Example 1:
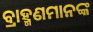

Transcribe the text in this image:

ବ୍ରାହ୍ମଣମାନଙ୍କ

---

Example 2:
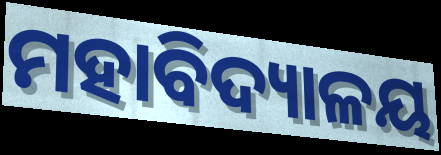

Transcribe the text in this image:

ମହାବିଦ୍ୟାଳୟ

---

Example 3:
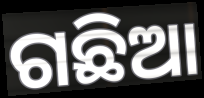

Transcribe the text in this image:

ଗଛିଆ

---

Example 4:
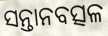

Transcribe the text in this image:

ସନ୍ତାନବତ୍ସଳ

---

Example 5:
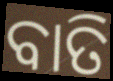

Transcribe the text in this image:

ବାତି